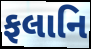
ફલાનિ